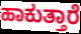
ಹಾಕುತ್ತಾರೆ